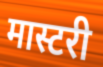
मास्टरी